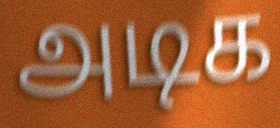
அடிக